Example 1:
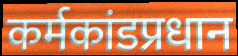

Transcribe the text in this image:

कर्मकांडप्रधान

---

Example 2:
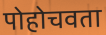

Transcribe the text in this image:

पोहोचवता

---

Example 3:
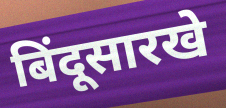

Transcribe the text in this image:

बिंदूसारखे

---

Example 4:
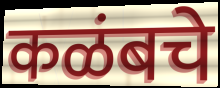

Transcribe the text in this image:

कळंबचे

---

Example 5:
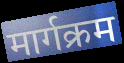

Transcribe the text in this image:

मार्गक्रम